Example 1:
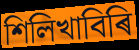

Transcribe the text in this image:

শিলিখাবিৰি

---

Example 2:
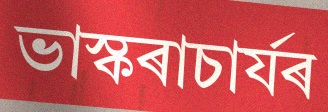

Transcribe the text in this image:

ভাস্কৰাচাৰ্যৰ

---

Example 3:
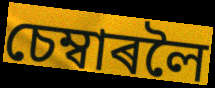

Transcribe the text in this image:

চেম্বাৰলৈ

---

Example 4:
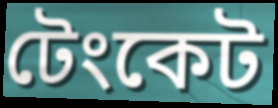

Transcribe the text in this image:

টেংকেট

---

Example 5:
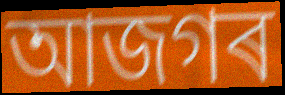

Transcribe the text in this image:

আজগৰ